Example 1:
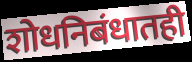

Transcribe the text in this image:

शोधनिबंधातही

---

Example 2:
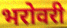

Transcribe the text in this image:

भरोवरी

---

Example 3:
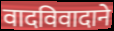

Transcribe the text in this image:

वादविवादाने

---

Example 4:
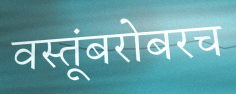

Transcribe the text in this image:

वस्तूंबरोबरच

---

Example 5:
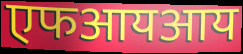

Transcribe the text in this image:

एफआयआय